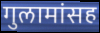
गुलामांसह